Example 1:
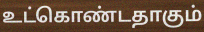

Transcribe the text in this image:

உட்கொண்டதாகும்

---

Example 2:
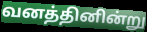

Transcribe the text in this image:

வனத்தினின்று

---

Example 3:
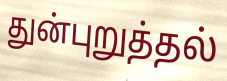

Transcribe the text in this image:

துன்புறுத்தல்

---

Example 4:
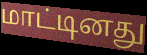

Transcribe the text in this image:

மாட்டினது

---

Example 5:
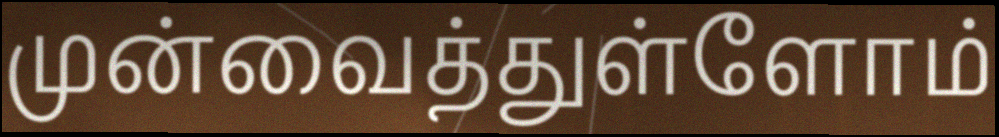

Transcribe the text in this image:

முன்வைத்துள்ளோம்